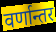
वर्णान्तर